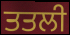
ਤਤਲੀ